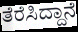
ತೆರೆಸಿದ್ದಾನೆ